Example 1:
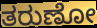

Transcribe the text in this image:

ತರುಣೋ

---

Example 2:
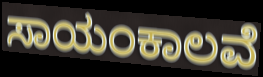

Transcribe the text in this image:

ಸಾಯಂಕಾಲವೆ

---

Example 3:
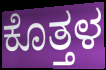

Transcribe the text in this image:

ಕೊತ್ತಳ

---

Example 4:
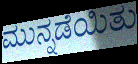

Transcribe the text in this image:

ಮುನ್ನಡೆಯಿತು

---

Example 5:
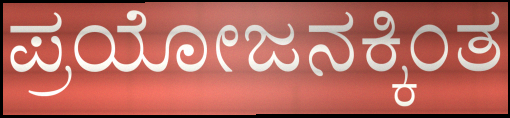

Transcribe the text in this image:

ಪ್ರಯೋಜನಕ್ಕಿಂತ